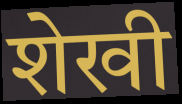
शेखी